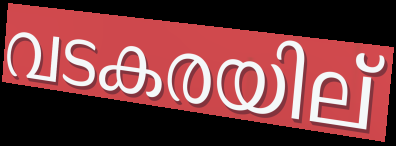
വടകരയില്